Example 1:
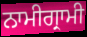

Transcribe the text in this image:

ਨਾਮੀਗ੍ਰਾਮੀ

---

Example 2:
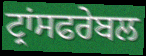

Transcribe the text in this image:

ਟ੍ਰਾਂਸਫਰੇਬਲ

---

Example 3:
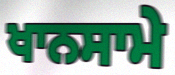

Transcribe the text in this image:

ਖਾਨਸਾਮੇ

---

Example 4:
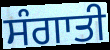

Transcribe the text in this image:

ਸੰਗਾਤੀ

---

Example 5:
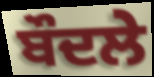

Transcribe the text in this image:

ਬੌਦਲੇ